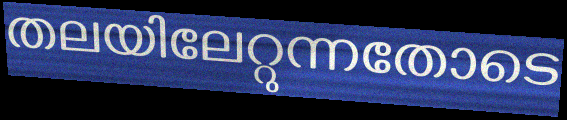
തലയിലേറ്റുന്നതോടെ